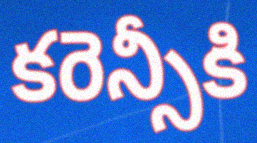
కరెన్సీకి